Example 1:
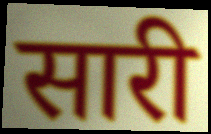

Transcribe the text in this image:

सारी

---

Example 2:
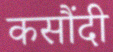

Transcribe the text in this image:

कसौंदी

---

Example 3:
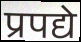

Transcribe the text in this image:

प्रपद्ये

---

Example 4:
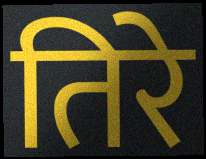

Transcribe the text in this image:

तिरे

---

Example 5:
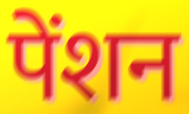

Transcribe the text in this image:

पेंशन